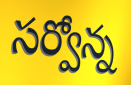
సర్వోన్న